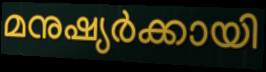
മനുഷ്യർക്കായി